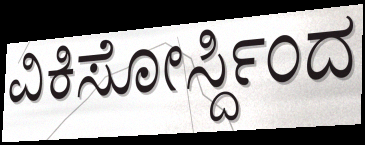
ವಿಕಿಸೋರ್ಸ್ದಿಂದ